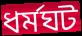
ধর্মঘট